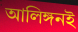
আলিঙ্গনই